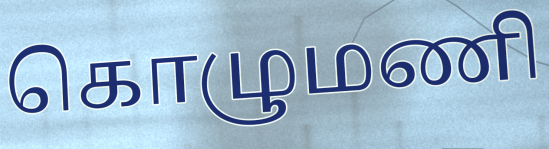
கொழுமணி